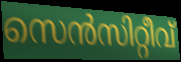
സെൻസിറ്റീവ്